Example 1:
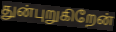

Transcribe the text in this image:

துன்புறுகிறேன்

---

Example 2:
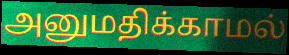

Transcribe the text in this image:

அனுமதிக்காமல்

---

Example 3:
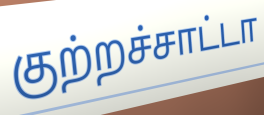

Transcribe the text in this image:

குற்றச்சாட்டா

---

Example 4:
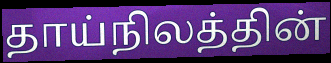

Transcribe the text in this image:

தாய்நிலத்தின்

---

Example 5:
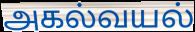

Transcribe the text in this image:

அகல்வயல்